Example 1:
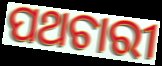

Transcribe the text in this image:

ପଥଚାରୀ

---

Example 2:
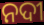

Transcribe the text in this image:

ନଦୀ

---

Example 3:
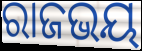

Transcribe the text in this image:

ରାଜଭୟ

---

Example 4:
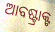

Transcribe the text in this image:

ଆବଷ୍ଟ୍ରାକ୍ଟ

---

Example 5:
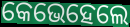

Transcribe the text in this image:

କେଭେହେଲେ